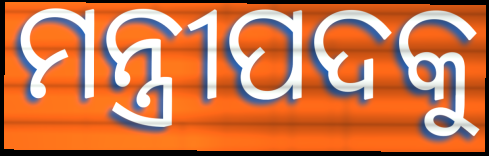
ମନ୍ତ୍ରୀପଦକୁ